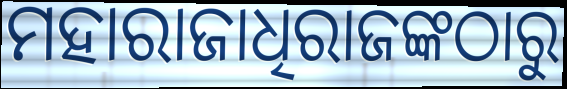
ମହାରାଜାଧିରାଜଙ୍କଠାରୁ